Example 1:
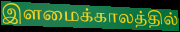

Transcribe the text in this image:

இளமைக்காலத்தில்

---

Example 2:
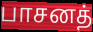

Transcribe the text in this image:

பாசனத்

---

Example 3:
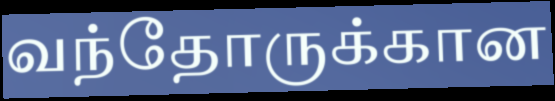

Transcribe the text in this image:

வந்தோருக்கான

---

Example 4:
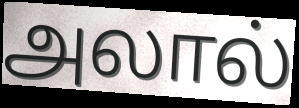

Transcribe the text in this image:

அலால்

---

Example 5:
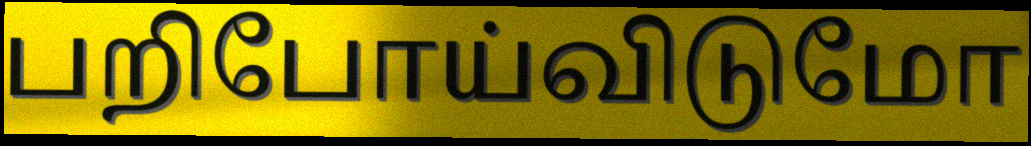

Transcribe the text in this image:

பறிபோய்விடுமோ